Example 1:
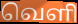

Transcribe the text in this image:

வெளி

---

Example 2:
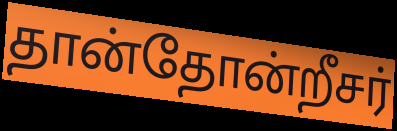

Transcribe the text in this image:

தான்தோன்றீசர்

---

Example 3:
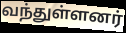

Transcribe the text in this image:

வந்துள்ளனர்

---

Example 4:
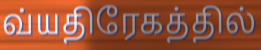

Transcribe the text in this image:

வ்யதிரேகத்தில்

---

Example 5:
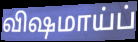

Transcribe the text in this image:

விஷமாய்ப்